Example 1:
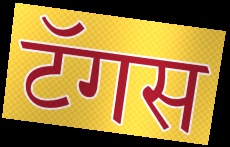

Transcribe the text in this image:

टॅगस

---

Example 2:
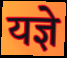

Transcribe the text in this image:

यज्ञे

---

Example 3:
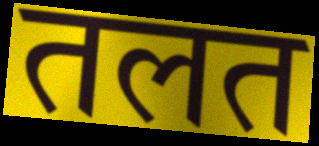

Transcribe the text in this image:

तलत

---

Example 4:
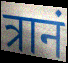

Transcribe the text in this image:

त्रानं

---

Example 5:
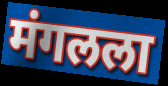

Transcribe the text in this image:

मंगलला